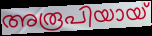
അരൂപിയായ്